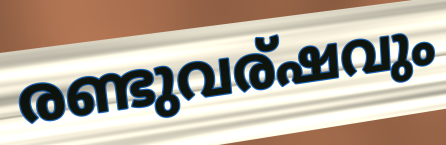
രണ്ടുവര്ഷവും